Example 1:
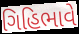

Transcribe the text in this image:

ગિહિભાવે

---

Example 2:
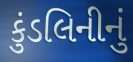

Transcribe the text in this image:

કુંડલિનીનું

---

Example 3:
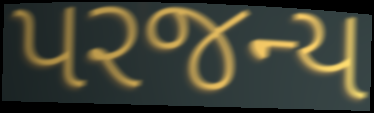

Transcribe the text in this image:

પરજન્ય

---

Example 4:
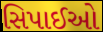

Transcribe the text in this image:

સિપાઈઓ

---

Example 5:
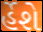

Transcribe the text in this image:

ર્હેશે